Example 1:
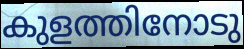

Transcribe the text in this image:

കുളത്തിനോടു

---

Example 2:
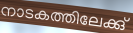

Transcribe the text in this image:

നാടകത്തിലേക്കു്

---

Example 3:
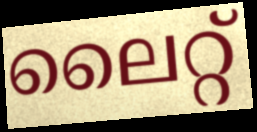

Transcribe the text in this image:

ലൈറ്റ്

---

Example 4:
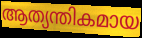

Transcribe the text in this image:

ആത്യന്തികമായ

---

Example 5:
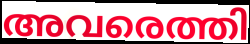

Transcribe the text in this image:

അവരെത്തി